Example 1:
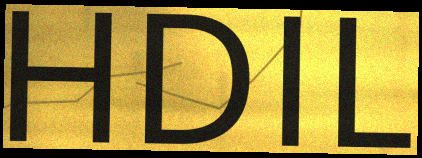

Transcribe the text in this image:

HDIL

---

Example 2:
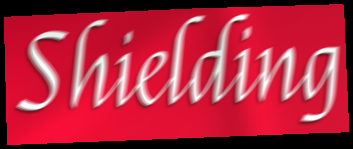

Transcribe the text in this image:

Shielding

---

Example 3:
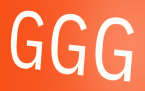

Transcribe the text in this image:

GGG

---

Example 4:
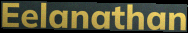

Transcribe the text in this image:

Eelanathan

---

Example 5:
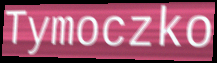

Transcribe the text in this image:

Tymoczko